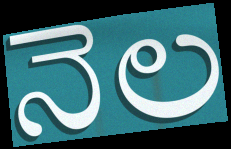
నెల